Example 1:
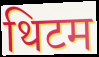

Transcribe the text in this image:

थिटम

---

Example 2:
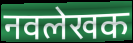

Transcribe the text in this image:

नवलेखक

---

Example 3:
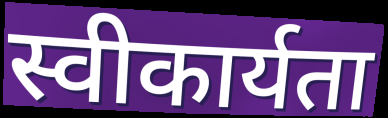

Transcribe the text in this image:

स्वीकार्यता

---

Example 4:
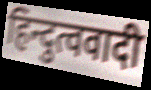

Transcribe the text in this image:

हिन्दुत्ववादी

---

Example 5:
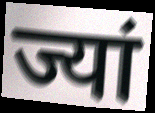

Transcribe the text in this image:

ज्यां